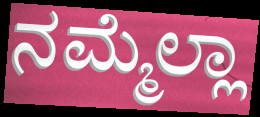
ನಮ್ಮೆಲ್ಲಾ